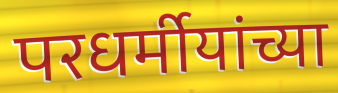
परधर्मीयांच्या